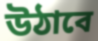
উঠাবে